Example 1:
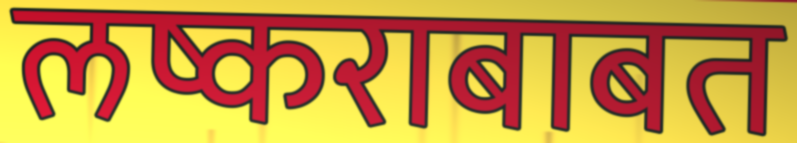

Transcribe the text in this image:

लष्कराबाबत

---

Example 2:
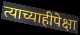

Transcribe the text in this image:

त्याच्याहीपेक्षा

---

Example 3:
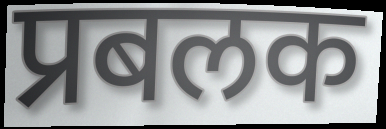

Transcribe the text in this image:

प्रबलक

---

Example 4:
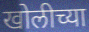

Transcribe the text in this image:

खोलीच्या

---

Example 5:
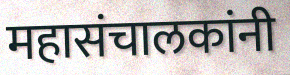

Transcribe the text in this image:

महासंचालकांनी